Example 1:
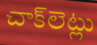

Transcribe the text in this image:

చాక్‌లెట్లు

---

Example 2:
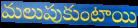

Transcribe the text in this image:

మలుపుకుంటాయి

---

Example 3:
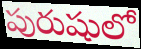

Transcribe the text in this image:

పురుషులో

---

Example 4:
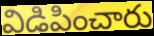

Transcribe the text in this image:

విడిపించారు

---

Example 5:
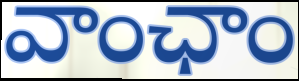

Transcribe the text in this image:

వాంఛాం